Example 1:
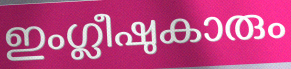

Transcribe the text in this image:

ഇംഗ്ലീഷുകാരും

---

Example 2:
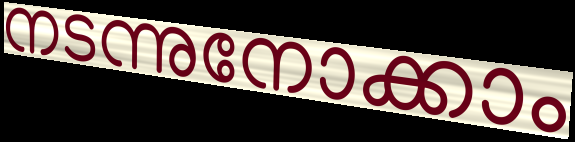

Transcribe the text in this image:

നടന്നുനോക്കാം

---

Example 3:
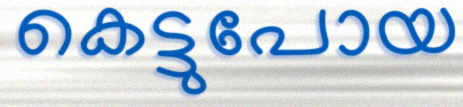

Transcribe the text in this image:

കെട്ടുപോയ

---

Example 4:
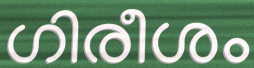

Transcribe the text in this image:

ഗിരീശം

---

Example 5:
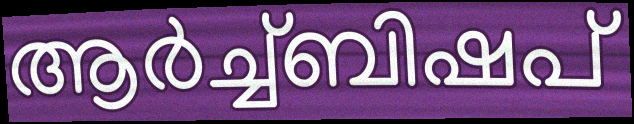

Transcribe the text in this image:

ആർച്ച്ബിഷപ്